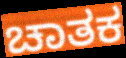
ಚಾತಕ